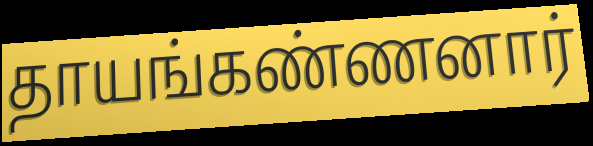
தாயங்கண்ணனார்